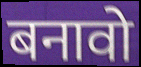
बनावो